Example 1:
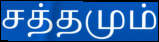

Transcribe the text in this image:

சத்தமும்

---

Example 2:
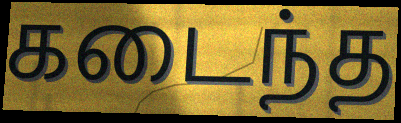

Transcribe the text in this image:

கடைந்த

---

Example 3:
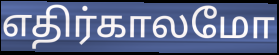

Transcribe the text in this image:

எதிர்காலமோ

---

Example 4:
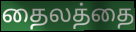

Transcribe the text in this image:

தைலத்தை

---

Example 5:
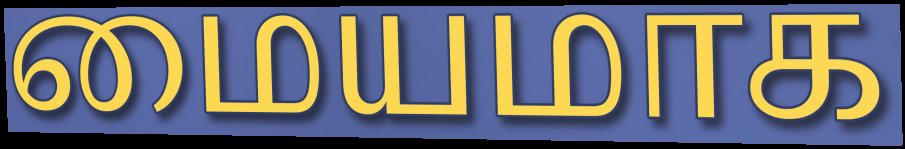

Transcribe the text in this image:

மையமாக